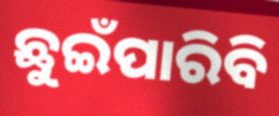
ଛୁଇଁପାରିବି